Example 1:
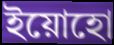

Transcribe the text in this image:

ইয়োহো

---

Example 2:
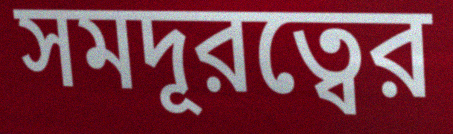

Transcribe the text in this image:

সমদূরত্বের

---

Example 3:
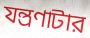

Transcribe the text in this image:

যন্ত্রণাটার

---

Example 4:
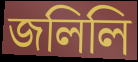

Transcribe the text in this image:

জলিলি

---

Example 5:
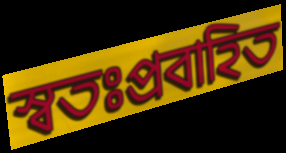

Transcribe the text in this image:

স্বতঃপ্রবাহিত